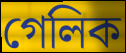
গেলিক